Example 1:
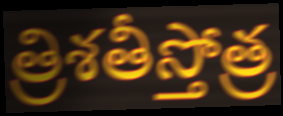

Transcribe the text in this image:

త్రిశతీస్తోత్ర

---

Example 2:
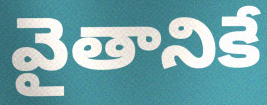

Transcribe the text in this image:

వైతానికే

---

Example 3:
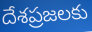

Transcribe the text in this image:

దేశప్రజలకు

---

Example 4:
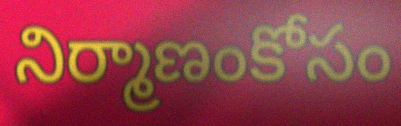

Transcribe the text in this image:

నిర్మాణంకోసం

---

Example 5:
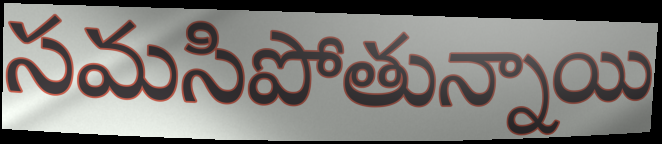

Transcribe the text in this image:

సమసిపోతున్నాయి